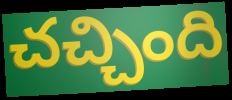
చచ్చింది